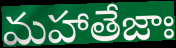
మహాతేజాః